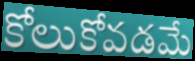
కోలుకోవడమే